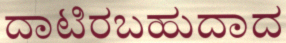
ದಾಟಿರಬಹುದಾದ